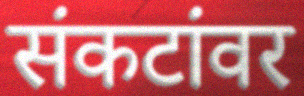
संकटांवर